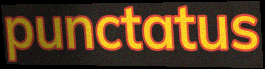
punctatus